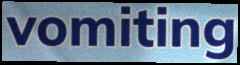
vomiting